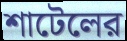
শাটেলের